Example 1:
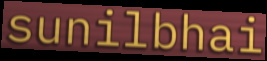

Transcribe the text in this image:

sunilbhai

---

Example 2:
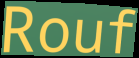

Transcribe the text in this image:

Rouf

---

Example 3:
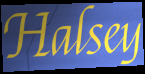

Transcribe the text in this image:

Halsey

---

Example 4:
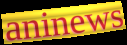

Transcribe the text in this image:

aninews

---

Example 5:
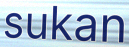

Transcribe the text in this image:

sukan